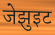
जेझुइट